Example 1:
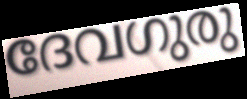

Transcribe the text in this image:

ദേവഗുരു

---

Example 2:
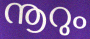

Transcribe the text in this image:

നൂറും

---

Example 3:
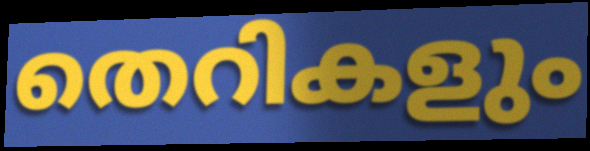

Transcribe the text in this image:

തെറികളും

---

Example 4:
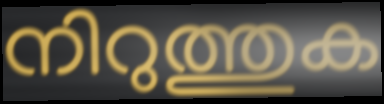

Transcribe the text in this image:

നിറുത്തുക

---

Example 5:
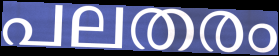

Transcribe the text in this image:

പലതരം